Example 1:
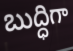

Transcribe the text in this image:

బుద్ధిగా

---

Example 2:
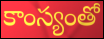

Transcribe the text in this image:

కాంస్యంతో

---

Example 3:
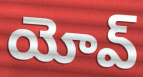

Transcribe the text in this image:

యోవ్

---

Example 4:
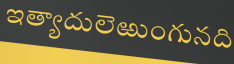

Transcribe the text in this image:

ఇత్యాదులెఱుంగునది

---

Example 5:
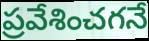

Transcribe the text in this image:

ప్రవేశించగనే